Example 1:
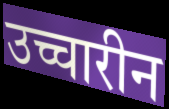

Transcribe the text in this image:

उच्चारीन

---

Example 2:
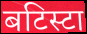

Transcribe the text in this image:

बटिस्टा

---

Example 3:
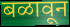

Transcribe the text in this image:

बळावून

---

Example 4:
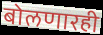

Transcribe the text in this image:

बोलणारही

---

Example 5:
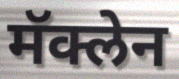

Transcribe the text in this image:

मॅक्लेन